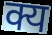
क्य